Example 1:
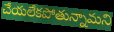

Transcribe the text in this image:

చేయలేకపోతున్నామని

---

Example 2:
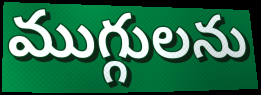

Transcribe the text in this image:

ముగ్గులను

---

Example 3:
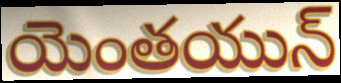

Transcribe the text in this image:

యెంతయున్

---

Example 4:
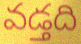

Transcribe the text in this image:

వడ్తది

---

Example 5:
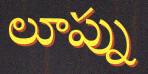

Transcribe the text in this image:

లూప్ను